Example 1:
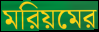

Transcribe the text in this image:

মরিয়মের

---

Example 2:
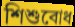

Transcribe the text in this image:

শিশুবোধ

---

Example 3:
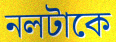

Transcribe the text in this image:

নলটাকে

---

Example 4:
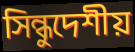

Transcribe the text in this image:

সিন্ধুদেশীয়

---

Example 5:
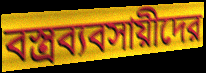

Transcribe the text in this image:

বস্ত্রব্যবসায়ীদের